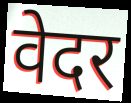
वेदर